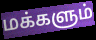
மக்களும்